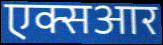
एक्सआर